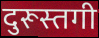
दुरूस्तगी